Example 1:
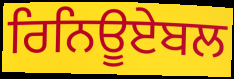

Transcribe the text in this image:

ਰਿਨਿਊਏਬਲ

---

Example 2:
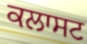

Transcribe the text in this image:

ਕਲਾਸਟ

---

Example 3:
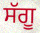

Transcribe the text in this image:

ਸੱਗੂ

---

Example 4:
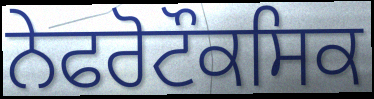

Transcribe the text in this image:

ਨੇਫਰੋਟੌਕਸਿਕ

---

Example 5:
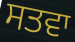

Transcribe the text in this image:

ਸਤਵਾ